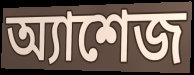
অ্যাশেজ